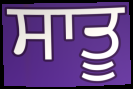
ਸਾਤੂ